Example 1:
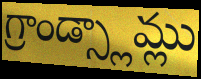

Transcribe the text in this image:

గ్రాండ్స్లామ్లు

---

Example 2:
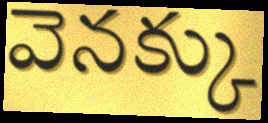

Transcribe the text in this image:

వెనక్కు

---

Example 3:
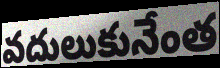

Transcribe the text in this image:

వదులుకునేంత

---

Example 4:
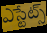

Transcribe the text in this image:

ఎస్టేట్స్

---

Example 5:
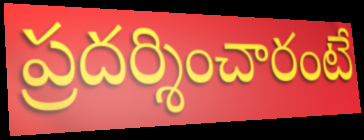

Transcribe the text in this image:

ప్రదర్శించారంటే